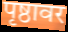
पृष्ठावर